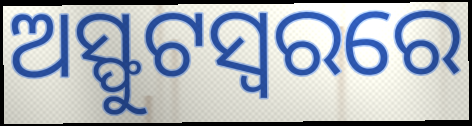
ଅସ୍ଫୁଟସ୍ୱରରେ